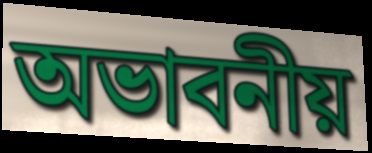
অভাবনীয়